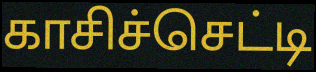
காசிச்செட்டி